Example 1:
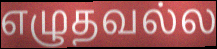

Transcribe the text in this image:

எழுதவல்ல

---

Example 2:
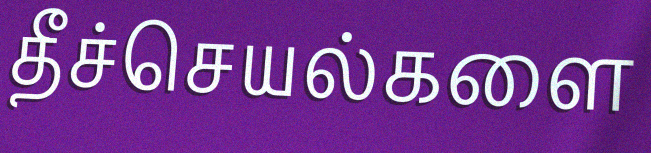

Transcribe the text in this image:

தீச்செயல்களை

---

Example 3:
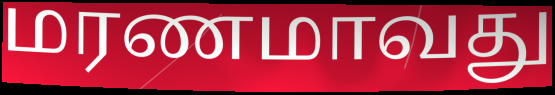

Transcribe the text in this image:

மரணமாவது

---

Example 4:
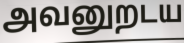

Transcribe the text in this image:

அவனுறடய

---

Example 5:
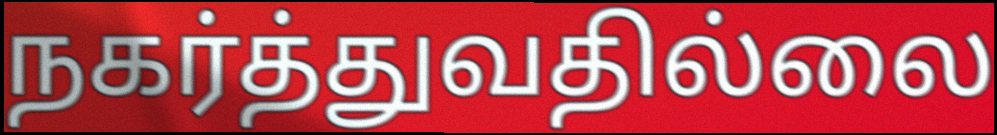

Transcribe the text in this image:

நகர்த்துவதில்லை